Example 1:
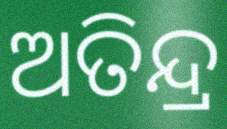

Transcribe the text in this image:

ଅତିନ୍ଦ୍ର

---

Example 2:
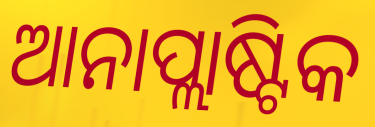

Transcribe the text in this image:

ଆନାପ୍ଲାଷ୍ଟିକ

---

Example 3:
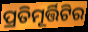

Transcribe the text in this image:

ପ୍ରତିମୂର୍ତ୍ତିଟିର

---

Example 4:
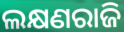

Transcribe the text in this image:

ଲକ୍ଷଣରାଜି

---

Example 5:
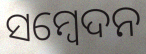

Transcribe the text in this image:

ସମ୍ଵେଦନ